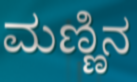
ಮಣ್ಣಿನ